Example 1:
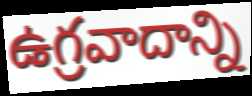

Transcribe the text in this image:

ఉగ్రవాదాన్ని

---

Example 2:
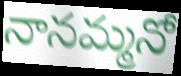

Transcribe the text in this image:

నానమ్మనో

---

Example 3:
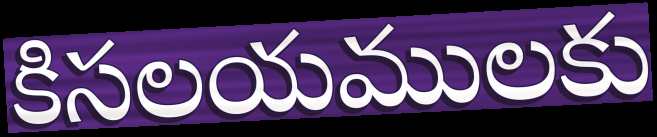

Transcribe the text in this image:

కిసలయములకు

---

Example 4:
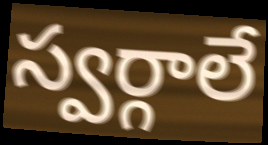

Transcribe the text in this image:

స్వర్గాలే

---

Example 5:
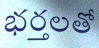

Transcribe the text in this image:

భర్తలతో